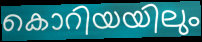
കൊറിയയിലും